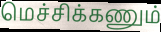
மெச்சிக்கணும்